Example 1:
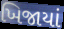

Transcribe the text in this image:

ખિજાયાં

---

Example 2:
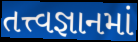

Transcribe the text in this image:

તત્ત્વજ્ઞાનમાં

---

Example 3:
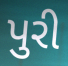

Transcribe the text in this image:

પુરી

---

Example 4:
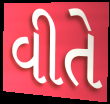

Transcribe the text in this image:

વીતે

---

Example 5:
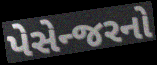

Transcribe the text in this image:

પેસેન્જરનો